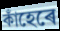
কাঁহেৰে